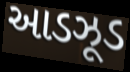
આડઝૂડ